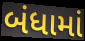
બંધામાં